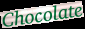
Chocolate